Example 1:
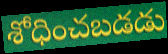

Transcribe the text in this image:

శోధించబడడు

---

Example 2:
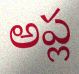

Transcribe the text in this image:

అప్ల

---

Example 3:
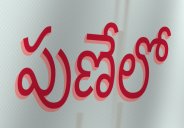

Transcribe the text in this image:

పుణేలో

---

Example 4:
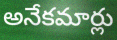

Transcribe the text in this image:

అనేకమార్లు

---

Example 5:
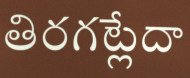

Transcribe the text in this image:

తిరగట్లేదా